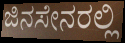
ಜಿನಸೇನರಲ್ಲಿ